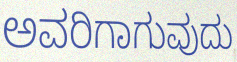
ಅವರಿಗಾಗುವುದು